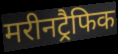
मरीनट्रैफिक